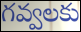
గవ్వలకు